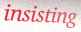
insisting